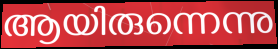
ആയിരുന്നെന്നു